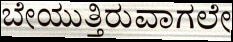
ಬೇಯುತ್ತಿರುವಾಗಲೇ